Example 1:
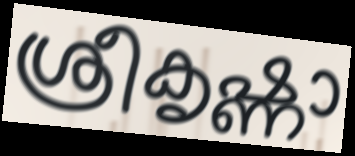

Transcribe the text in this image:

ശ്രീകൃഷ്ണാ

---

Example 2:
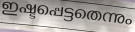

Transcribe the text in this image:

ഇഷ്ടപ്പെട്ടതെന്നും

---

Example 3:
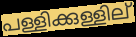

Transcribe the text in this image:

പള്ളിക്കുള്ളില്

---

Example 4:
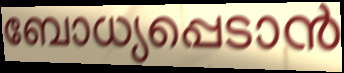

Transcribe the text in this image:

ബോധ്യപ്പെടാൻ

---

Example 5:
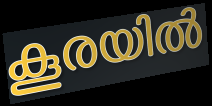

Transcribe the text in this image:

കൂരയിൽ